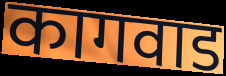
कागवाड